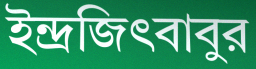
ইন্দ্রজিৎবাবুর